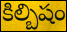
కిల్బిషం